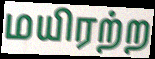
மயிரற்ற